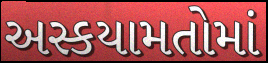
અસ્કયામતોમાં